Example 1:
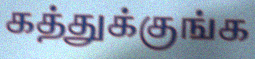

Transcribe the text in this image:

கத்துக்குங்க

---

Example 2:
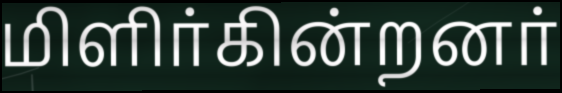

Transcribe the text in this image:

மிளிர்கின்றனர்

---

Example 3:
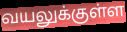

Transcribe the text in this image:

வயலுக்குள்ள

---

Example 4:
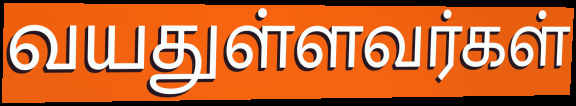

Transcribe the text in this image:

வயதுள்ளவர்கள்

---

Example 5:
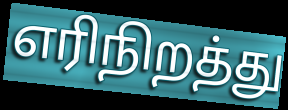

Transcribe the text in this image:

எரிநிறத்து